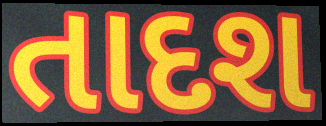
તાદશ